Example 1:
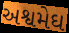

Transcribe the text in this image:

અશ્વમેઘ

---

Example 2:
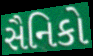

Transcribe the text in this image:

સૈનિકો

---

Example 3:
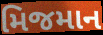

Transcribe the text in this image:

મિજમાન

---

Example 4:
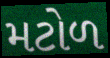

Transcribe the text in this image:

મટોળ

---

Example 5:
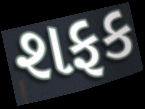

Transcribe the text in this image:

શફક